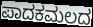
ಪಾದಕಮಲದ